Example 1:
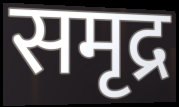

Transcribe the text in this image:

समृद्र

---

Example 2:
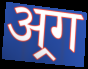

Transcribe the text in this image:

अ्रग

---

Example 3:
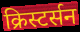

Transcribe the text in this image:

क्रिस्टर्सन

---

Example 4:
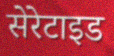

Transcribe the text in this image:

सेरेटाइड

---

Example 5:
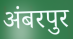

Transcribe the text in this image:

अंबरपुर